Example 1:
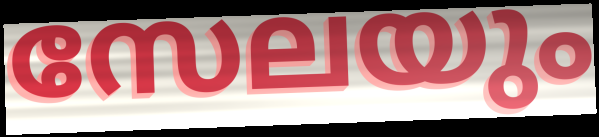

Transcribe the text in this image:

സേലയും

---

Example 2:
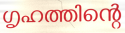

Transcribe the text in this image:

ഗൃഹത്തിന്റെ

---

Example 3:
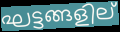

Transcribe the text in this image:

ഘട്ടങ്ങളില്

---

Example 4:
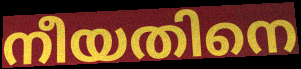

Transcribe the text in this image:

നീയതിനെ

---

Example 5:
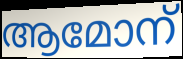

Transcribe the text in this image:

ആമോന്